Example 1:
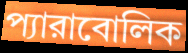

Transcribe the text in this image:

প্যারাবোলিক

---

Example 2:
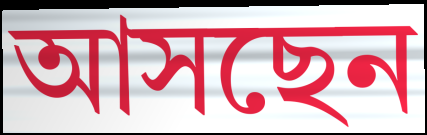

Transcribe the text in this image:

আসছেন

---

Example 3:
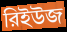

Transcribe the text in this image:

রিইউজ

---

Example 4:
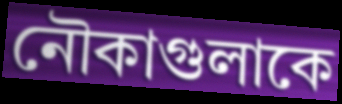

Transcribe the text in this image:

নৌকাগুলাকে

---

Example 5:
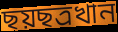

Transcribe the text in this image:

ছয়ছত্রখান